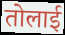
तोलाई